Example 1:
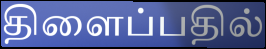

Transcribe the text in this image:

திளைப்பதில்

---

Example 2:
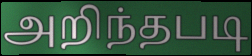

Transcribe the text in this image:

அறிந்தபடி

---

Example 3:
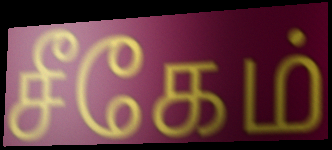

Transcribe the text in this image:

சீகேம்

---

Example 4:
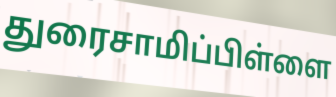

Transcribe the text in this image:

துரைசாமிப்பிள்ளை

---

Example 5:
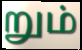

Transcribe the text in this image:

றும்